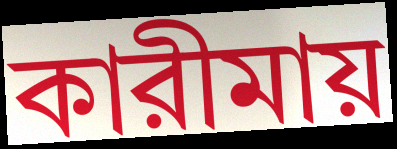
কারীমায়